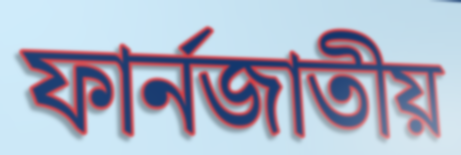
ফার্নজাতীয়